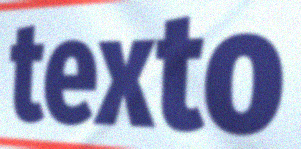
texto